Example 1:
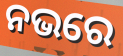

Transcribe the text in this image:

ନଭରେ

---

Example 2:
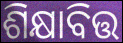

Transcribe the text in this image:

ଶିକ୍ଷାବିତ୍ତ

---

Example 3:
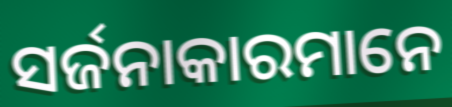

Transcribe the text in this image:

ସର୍ଜନାକାରମାନେ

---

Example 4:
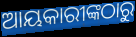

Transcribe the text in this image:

ଆୟକାରୀଙ୍କଠାରୁ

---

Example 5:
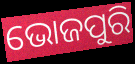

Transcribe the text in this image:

ଭୋଜପୁରି